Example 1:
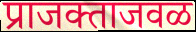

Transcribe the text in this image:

प्राजक्ताजवळ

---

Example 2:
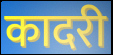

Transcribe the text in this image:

कादरी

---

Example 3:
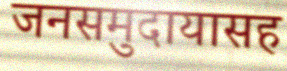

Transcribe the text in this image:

जनसमुदायासह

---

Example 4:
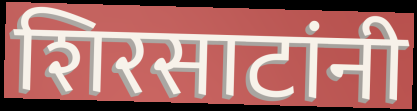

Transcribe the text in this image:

शिरसाटांनी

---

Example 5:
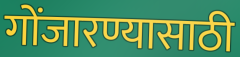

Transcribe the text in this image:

गोंजारण्यासाठी